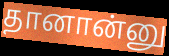
தானான்னு